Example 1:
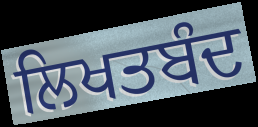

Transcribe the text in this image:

ਲਿਖਤਬੰਦ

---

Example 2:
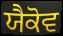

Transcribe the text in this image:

ਯੈਕੋਵ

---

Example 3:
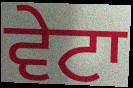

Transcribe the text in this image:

ਵੇਟਾ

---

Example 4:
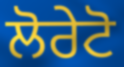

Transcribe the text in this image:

ਲੋਰੇਟੋ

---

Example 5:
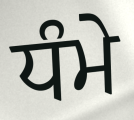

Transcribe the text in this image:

ਧੰਮੇ